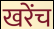
खरेंच